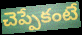
చెప్పేకంటే